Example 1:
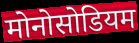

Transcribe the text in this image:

मोनोसोडियम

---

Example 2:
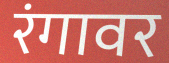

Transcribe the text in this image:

रंगावर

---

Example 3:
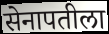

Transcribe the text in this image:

सेनापतीला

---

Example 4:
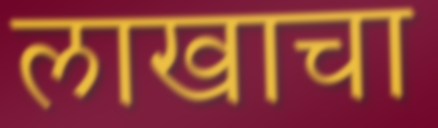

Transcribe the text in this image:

लाखाचा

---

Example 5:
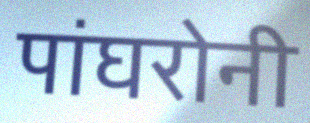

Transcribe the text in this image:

पांघरोनी